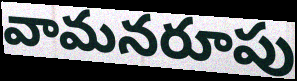
వామనరూపు